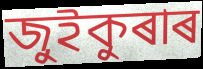
জুইকুৰাৰ